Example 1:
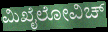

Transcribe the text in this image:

ಮಿಖೈಲೋವಿಚ್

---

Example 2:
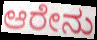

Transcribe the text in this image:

ಆರೇನು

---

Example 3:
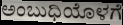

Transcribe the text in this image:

ಅಂಬುಧಿಯೊಳಗೆ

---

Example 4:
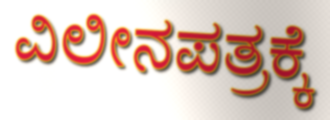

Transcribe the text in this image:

ವಿಲೀನಪತ್ರಕ್ಕೆ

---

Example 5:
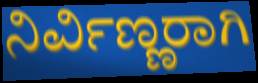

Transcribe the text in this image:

ನಿರ್ವಿಣ್ಣರಾಗಿ